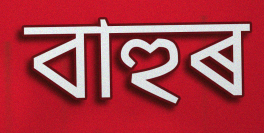
বাহুৰ